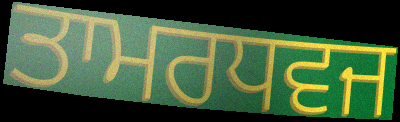
ਤਾਮਰਧਵਜ